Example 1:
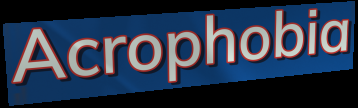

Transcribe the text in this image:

Acrophobia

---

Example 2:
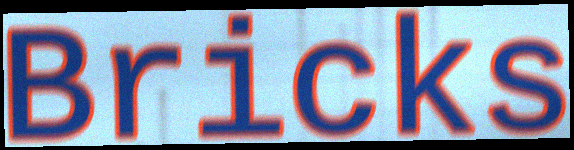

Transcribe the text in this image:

Bricks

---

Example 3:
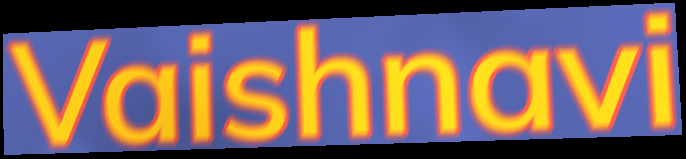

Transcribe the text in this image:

Vaishnavi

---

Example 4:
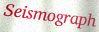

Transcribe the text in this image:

Seismograph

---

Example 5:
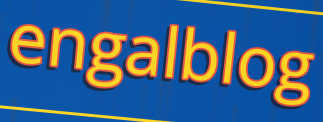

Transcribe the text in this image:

engalblog